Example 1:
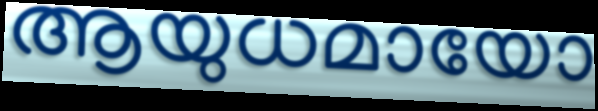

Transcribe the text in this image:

ആയുധമായോ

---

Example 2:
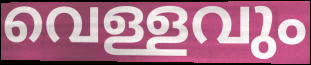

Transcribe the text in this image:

വെള്ളവും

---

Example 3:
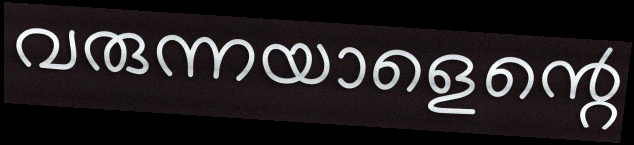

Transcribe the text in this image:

വരുന്നയാളെന്റെ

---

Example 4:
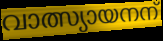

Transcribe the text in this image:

വാത്സ്യായനന്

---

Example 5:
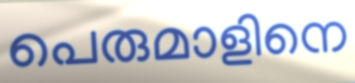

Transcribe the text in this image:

പെരുമാളിനെ